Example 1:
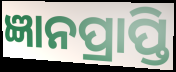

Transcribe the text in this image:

ଜ୍ଞାନପ୍ରାପ୍ତି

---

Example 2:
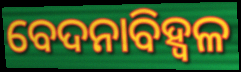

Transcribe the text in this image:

ବେଦନାବିହ୍ୱଳ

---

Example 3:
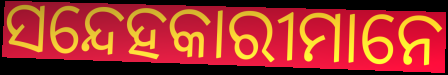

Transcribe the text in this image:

ସନ୍ଦେହକାରୀମାନେ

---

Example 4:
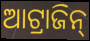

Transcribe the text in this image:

ଆଟ୍ରାଜିନ୍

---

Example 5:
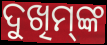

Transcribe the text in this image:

ଦୁଖିମ୍‌ଙ୍କ